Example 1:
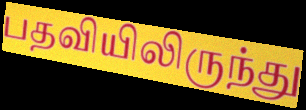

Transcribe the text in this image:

பதவியிலிருந்து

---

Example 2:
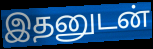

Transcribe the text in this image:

இதனுடன்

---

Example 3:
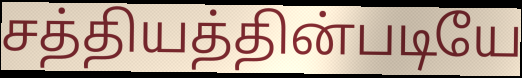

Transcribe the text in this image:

சத்தியத்தின்படியே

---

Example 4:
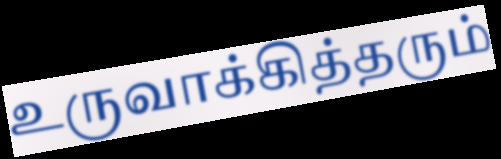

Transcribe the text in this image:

உருவாக்கித்தரும்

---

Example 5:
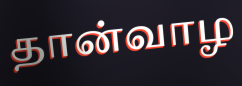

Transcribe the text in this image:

தான்வாழ